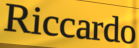
Riccardo